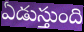
ఏడుస్తుంది